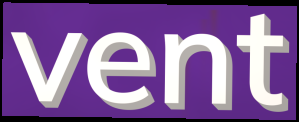
vent